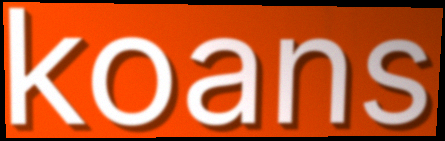
koans